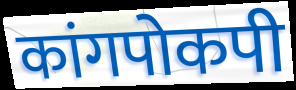
कांगपोकपी